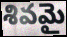
శివమై